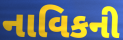
નાવિકની